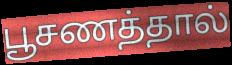
பூசணத்தால்